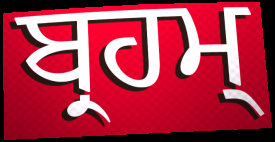
ਬ੍ਰਹਮ੍